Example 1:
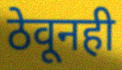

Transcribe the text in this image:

ठेवूनही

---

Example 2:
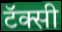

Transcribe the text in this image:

टॅक्सी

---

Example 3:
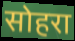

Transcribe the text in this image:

सोहरा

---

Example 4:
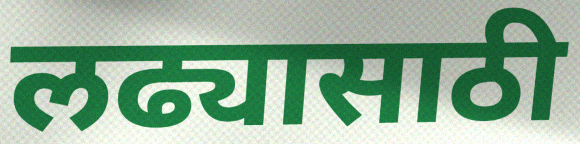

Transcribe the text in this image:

लढ्यासाठी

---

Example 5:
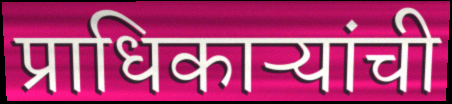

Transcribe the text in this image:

प्राधिकाऱ्यांची